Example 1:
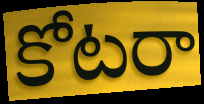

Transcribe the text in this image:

కోటరా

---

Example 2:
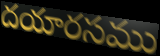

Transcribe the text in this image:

దయారసము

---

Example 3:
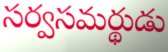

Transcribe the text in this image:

సర్వసమర్థుడు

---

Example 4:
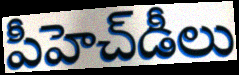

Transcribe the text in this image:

పీహెచ్‌డీలు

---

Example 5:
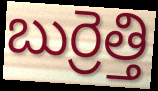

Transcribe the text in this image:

బుర్రెత్తి